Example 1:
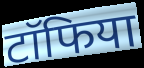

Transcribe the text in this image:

टॉफिया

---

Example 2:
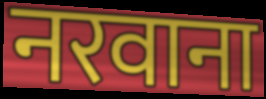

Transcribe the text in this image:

नरवाना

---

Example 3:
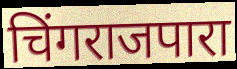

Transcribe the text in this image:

चिंगराजपारा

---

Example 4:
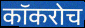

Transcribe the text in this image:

कॉकरोच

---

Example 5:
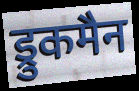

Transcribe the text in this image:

ड्रुकमैन